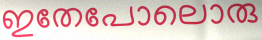
ഇതേപോലൊരു